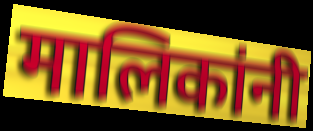
मालिकांनी